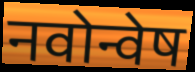
नवोन्वेष